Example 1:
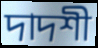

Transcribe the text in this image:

দাদশী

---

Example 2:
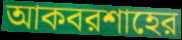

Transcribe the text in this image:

আকবরশাহের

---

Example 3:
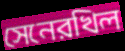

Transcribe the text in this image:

সেনেরখিল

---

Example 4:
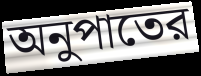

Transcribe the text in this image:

অনুপাতের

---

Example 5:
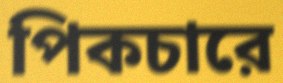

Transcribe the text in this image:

পিকচারে